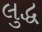
લુદ્ધ